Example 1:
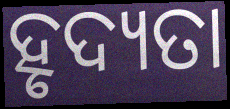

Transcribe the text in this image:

ହୃଦ୍ୟତା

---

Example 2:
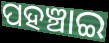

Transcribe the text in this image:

ପହଞ୍ଚାଇ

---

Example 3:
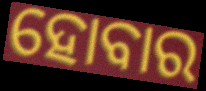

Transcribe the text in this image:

ହୋବାର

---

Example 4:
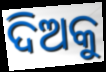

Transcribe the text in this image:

ଦିଅକୁ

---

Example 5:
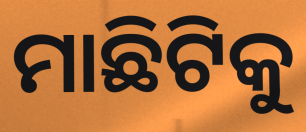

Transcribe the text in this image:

ମାଛିଟିକୁ